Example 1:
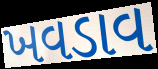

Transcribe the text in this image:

ખવડાવ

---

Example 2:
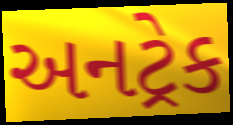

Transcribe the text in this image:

અનટ્રેક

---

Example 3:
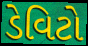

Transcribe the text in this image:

ડેવિટો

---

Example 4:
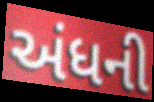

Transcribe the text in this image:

અંધની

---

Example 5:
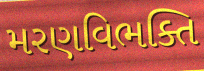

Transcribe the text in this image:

મરણવિભક્તિ